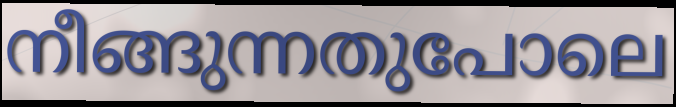
നീങ്ങുന്നതുപോലെ